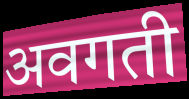
अवगती